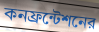
কনফ্রন্টেশনের